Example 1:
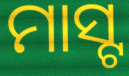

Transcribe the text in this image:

ମାସ୍ଟ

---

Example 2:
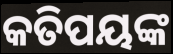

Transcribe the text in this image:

କତିପୟଙ୍କ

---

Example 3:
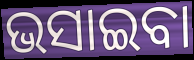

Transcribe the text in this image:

ଭସାଇବା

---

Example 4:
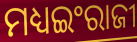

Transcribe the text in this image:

ମଧ୍ୟଇଂରାଜୀ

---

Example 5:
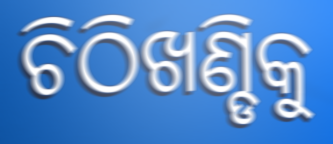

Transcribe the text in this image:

ଚିଠିଖଣ୍ଡିକୁ